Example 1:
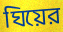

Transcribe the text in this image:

ঘিয়ের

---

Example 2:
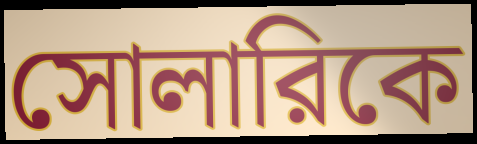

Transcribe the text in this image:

সোলারিকে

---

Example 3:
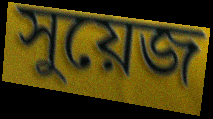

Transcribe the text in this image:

সুয়েজ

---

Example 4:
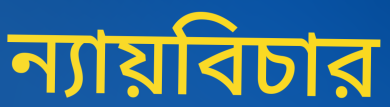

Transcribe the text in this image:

ন্যায়বিচার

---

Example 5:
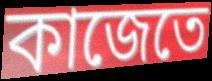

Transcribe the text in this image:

কাজেতে